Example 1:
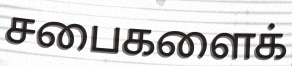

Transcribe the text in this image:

சபைகளைக்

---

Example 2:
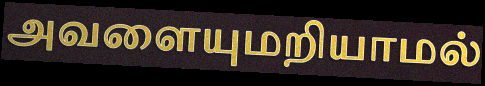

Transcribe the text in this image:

அவளையுமறியாமல்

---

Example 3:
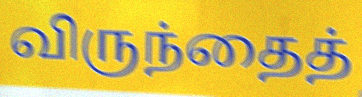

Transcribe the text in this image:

விருந்தைத்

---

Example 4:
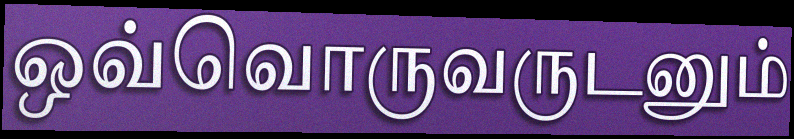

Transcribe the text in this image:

ஒவ்வொருவருடனும்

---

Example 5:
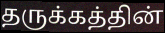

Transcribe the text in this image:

தருக்கத்தின்